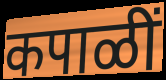
कपाळीं